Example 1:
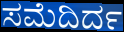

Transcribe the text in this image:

ಸಮೆದಿರ್ದ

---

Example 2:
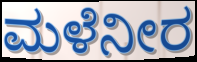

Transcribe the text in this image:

ಮಳೆನೀರ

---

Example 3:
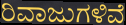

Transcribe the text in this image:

ರಿವಾಜುಗಳಿವೆ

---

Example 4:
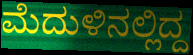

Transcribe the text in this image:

ಮೆದುಳಿನಲ್ಲಿದ್ದ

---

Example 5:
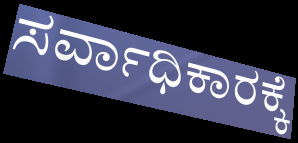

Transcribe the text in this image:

ಸರ್ವಾಧಿಕಾರಕ್ಕೆ